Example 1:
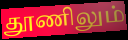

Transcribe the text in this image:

தூணிலும்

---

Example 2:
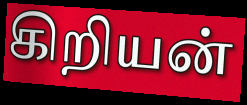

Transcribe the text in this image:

கிறியன்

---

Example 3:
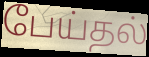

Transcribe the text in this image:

பேய்தல்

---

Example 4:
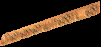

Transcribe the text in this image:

பிள்ளையாண்டன்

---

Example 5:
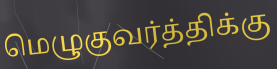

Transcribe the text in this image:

மெழுகுவர்த்திக்கு